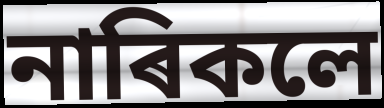
নাৰিকলে